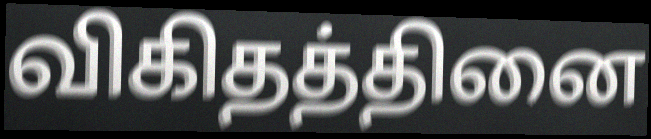
விகிதத்தினை